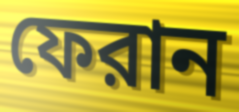
ফেরান